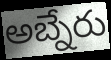
అబ్నేరు